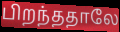
பிறந்ததாலே